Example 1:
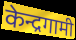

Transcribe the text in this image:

केन्द्रगामी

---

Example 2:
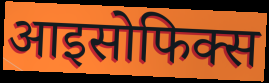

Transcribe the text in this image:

आइसोफिक्स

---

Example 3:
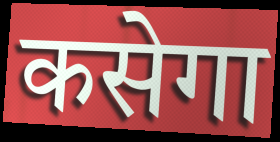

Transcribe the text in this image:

कसेगा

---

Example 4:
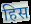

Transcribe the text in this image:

हिस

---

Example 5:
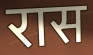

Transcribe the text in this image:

रास